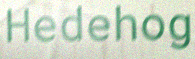
Hedehog